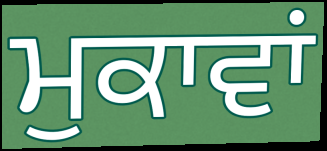
ਮੁਕਾਵਾਂ